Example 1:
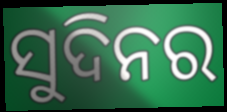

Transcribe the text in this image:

ସୁଦିନର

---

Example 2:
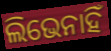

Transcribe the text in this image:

ଲିଭେନାହିଁ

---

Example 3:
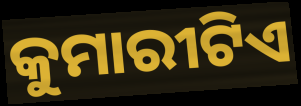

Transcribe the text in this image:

କୁମାରୀଟିଏ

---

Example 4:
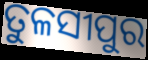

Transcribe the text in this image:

ତୁଳସୀପୁର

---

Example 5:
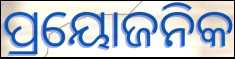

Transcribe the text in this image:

ପ୍ରୟୋଜନିକ